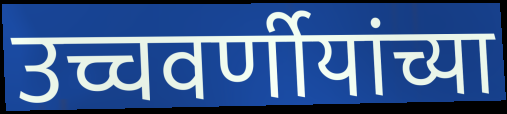
उच्चवर्णीयांच्या